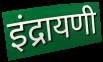
इंद्रायणी